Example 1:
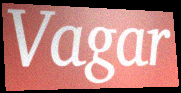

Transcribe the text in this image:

Vagar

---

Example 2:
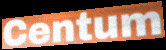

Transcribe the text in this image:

Centum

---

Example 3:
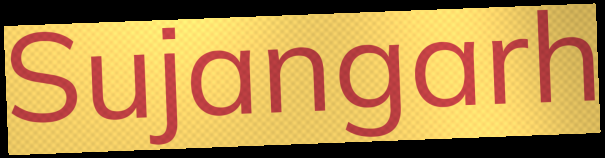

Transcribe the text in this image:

Sujangarh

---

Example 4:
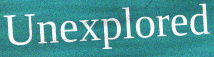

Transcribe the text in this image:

Unexplored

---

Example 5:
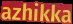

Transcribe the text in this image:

azhikka